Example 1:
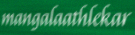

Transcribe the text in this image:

mangalaathlekar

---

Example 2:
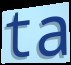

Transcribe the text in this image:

ta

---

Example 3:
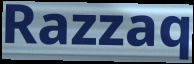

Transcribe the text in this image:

Razzaq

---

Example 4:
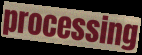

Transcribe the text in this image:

processing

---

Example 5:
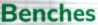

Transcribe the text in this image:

Benches